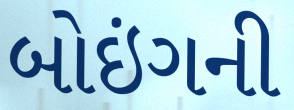
બોઇંગની